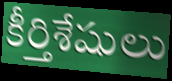
కీర్తిశేషులు